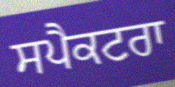
ਸਪੈਕਟਰਾ